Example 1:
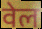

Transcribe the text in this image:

वेल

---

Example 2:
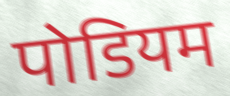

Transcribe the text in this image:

पोडियम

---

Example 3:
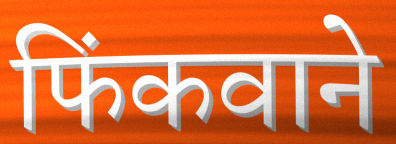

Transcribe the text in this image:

फिंकवाने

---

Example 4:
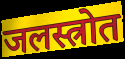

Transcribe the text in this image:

जलस्त्रोत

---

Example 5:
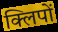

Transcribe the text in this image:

क्लिपों